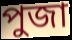
পুজা